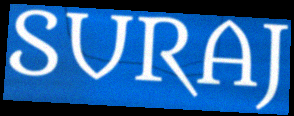
SURAJ